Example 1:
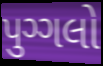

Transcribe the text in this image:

પુગ્ગલો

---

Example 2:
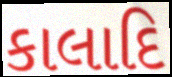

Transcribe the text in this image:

કાલાદિ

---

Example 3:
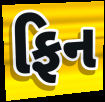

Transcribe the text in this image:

ફિન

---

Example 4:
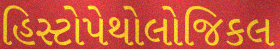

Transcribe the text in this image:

હિસ્ટોપેથોલોજિકલ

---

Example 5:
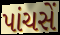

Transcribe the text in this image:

પાંચસેં